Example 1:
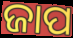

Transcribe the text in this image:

ଜାପ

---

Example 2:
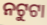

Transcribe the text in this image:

ନଟୁଟା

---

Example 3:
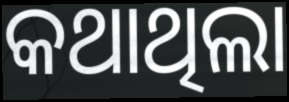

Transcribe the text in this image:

କଥାଥିଲା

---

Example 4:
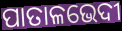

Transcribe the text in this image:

ପାତାଳଭେଦୀ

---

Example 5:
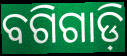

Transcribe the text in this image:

ବଗିଗାଡ଼ି